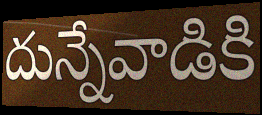
దున్నేవాడికి